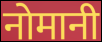
नोमानी